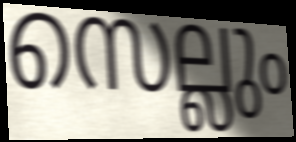
സെല്ലും